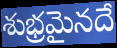
శుభ్రమైనదే